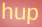
hup